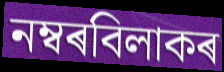
নম্বৰবিলাকৰ